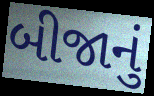
બીજાનું